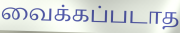
வைக்கப்படாத